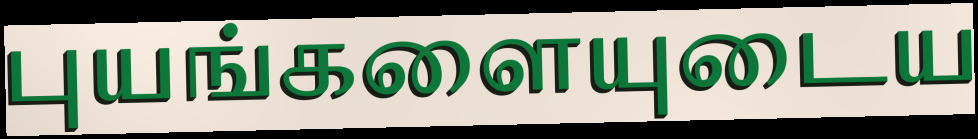
புயங்களையுடைய